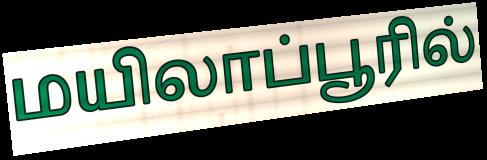
மயிலாப்பூரில்